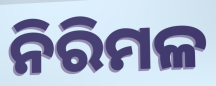
ନିରିମଳ